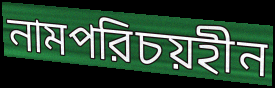
নামপরিচয়হীন